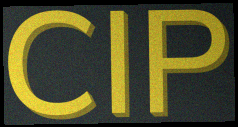
CIP